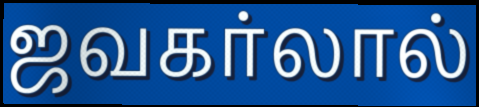
ஜவகர்லால்